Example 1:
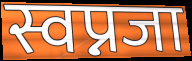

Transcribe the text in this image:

स्वप्नजा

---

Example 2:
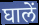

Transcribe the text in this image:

घालें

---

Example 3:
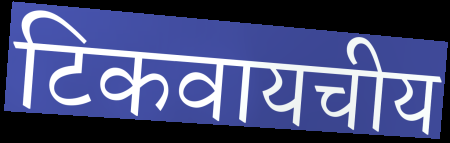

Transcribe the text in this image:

टिकवायचीय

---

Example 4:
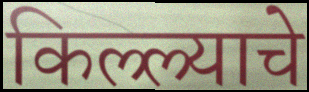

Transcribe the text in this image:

किल्ल्याचे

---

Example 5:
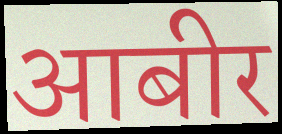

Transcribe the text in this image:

आबीर